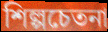
শিল্পচেতনা